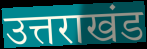
उत्तराखंड